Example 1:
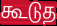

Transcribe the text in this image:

கூடுத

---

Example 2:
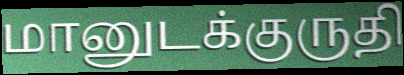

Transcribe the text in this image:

மானுடக்குருதி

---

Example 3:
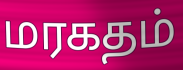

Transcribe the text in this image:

மரகதம்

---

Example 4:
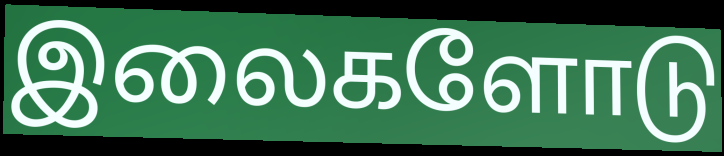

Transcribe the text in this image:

இலைகளோடு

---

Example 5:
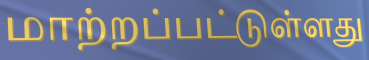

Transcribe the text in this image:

மாற்றப்பட்டுள்ளது